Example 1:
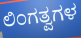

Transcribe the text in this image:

ಲಿಂಗತ್ವಗಳ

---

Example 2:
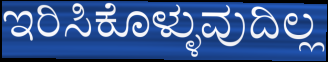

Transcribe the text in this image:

ಇರಿಸಿಕೊಳ್ಳುವುದಿಲ್ಲ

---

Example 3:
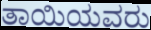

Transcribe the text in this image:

ತಾಯಿಯವರು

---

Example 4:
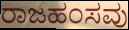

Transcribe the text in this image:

ರಾಜಹಂಸವು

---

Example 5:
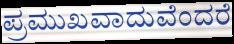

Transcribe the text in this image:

ಪ್ರಮುಖವಾದುವೆಂದರೆ